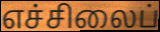
எச்சிலைப்